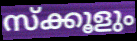
സ്ക്കൂളും